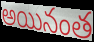
అయినంత